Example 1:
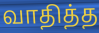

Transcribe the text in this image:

வாதித்த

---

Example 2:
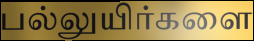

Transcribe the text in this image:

பல்லுயிர்களை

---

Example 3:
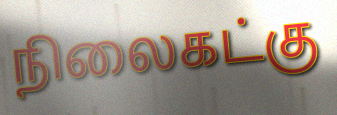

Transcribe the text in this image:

நிலைகட்கு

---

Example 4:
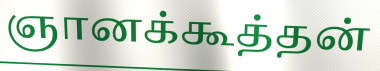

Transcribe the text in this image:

ஞானக்கூத்தன்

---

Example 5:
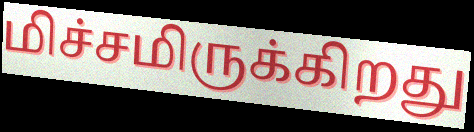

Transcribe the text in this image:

மிச்சமிருக்கிறது